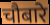
चौबारे